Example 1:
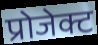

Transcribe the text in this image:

प्रोजेक्ट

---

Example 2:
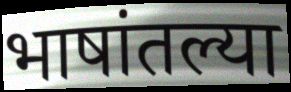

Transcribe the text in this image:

भाषांतल्या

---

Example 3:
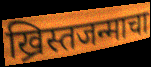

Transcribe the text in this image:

ख्रिस्तजन्माचा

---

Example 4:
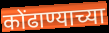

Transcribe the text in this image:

कोंढाण्याच्या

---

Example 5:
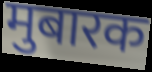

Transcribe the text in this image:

मुबारक